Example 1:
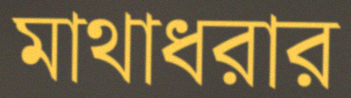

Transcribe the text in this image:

মাথাধরার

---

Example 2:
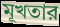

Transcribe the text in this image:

মূখতার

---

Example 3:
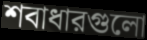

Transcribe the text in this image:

শবাধারগুলো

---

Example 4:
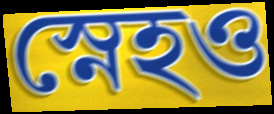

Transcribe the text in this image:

স্নেহও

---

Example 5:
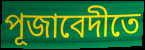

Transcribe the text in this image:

পূজাবেদীতে